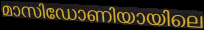
മാസിഡോണിയായിലെ